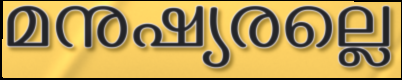
മനുഷ്യരല്ലെ